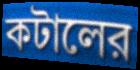
কটালের